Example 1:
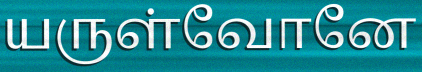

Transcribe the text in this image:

யருள்வோனே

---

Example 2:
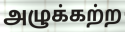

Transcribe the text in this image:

அழுக்கற்ற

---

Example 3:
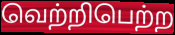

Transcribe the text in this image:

வெற்றிபெற்ற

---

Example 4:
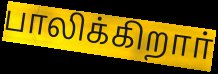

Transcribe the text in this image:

பாலிக்கிறார்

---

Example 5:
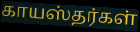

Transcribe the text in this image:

காயஸ்தர்கள்